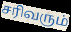
சரிவரும்